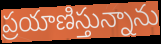
ప్రయాణిస్తున్నాను